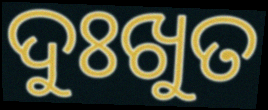
ଦୁଃଖୁତ